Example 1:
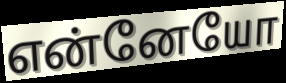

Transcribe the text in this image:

என்னேயோ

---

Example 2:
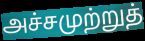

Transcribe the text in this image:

அச்சமுற்றுத்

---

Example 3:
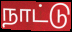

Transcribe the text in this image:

நாட்டு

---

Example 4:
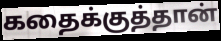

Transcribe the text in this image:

கதைக்குத்தான்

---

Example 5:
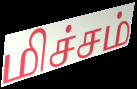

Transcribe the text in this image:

மிச்சம்